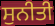
ਸੁਨੀਤੀ